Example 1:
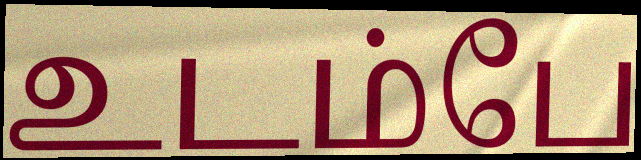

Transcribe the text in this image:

உடம்பே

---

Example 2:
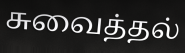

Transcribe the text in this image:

சுவைத்தல்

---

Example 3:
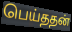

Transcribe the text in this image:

பெய்ததன்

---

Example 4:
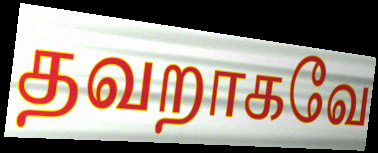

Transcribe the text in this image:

தவறாகவே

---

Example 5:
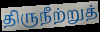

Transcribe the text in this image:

திருநீற்றுத்